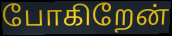
போகிறேன்